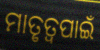
ମାତୃତ୍ୱପାଇଁ